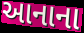
આનાના